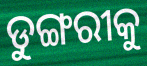
ଡୁଙ୍ଗରୀକୁ